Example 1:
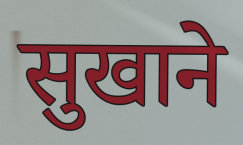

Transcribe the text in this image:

सुखाने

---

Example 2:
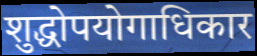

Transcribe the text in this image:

शुद्धोपयोगाधिकार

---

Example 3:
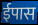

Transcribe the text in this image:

ईपास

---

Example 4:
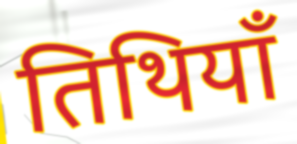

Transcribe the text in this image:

तिथियाँ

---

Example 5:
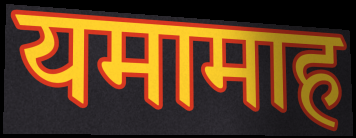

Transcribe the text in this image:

यमामाह